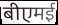
बीएमई